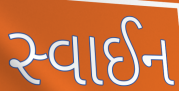
સ્વાઈન